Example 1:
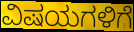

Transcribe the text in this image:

ವಿಷಯಗಳಿಗೆ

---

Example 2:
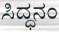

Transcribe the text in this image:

ಸಿದ್ಧನಂ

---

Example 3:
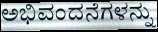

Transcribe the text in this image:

ಅಭಿವಂದನೆಗಳನ್ನು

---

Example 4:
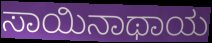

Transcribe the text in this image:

ಸಾಯಿನಾಥಾಯ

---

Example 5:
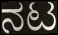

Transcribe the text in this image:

ನಟ